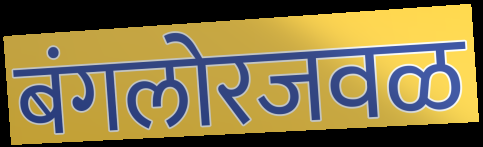
बंगलोरजवळ